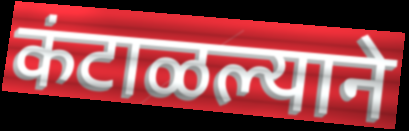
कंटाळल्याने